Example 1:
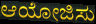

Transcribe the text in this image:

ಆಯೋಜಿಸು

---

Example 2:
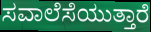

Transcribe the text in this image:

ಸವಾಲೆಸೆಯುತ್ತಾರೆ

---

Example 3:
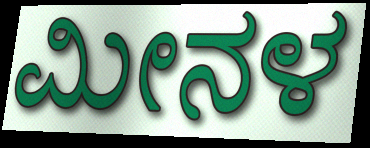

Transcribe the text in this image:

ಮೀನಳ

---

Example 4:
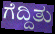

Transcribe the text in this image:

ಗೆದ್ದಿತು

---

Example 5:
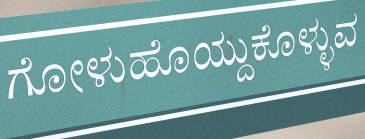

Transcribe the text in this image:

ಗೋಳುಹೊಯ್ದುಕೊಳ್ಳುವ